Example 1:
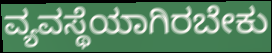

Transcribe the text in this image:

ವ್ಯವಸ್ಥೆಯಾಗಿರಬೇಕು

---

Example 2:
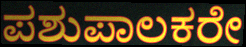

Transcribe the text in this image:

ಪಶುಪಾಲಕರೇ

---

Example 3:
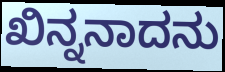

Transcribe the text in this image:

ಖಿನ್ನನಾದನು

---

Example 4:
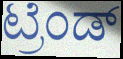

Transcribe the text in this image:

ಟ್ರೆಂಡ್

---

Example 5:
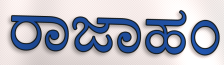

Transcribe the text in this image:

ರಾಜಾಹಂ